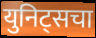
युनिट्सचा